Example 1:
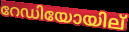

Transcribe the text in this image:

റേഡിയോയില്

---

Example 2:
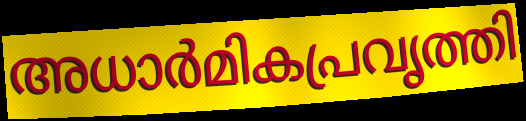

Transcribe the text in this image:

അധാർമികപ്രവൃത്തി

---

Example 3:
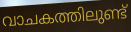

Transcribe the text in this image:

വാചകത്തിലുണ്ട്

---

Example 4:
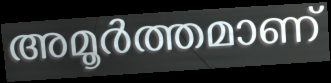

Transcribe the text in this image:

അമൂർത്തമാണ്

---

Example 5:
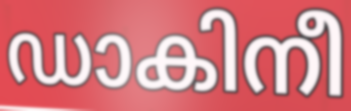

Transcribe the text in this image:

ഡാകിനീ